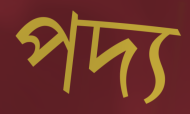
পদ্য